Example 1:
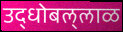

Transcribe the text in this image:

उद्धोबल्लाळ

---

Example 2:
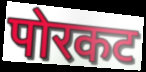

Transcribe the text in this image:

पोरकट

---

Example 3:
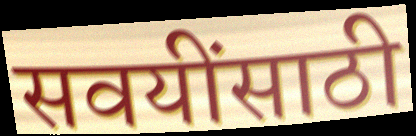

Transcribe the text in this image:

सवयींसाठी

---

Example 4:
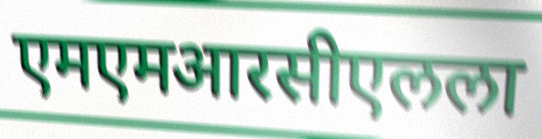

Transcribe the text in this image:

एमएमआरसीएलला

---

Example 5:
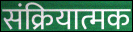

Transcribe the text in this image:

संक्रियात्मक